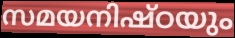
സമയനിഷ്ഠയും